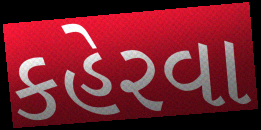
કહેરવા